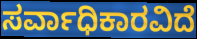
ಸರ್ವಾಧಿಕಾರವಿದೆ